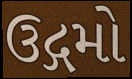
ઉદ્ગમો